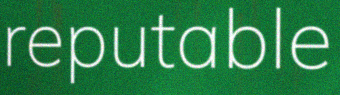
reputable